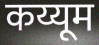
कय्यूम